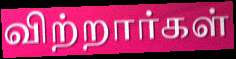
விற்றார்கள்